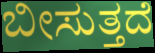
ಬೀಸುತ್ತದೆ